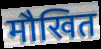
मौखित